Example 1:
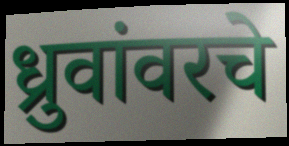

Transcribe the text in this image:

ध्रुवांवरचे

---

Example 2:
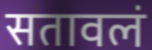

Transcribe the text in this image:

सतावलं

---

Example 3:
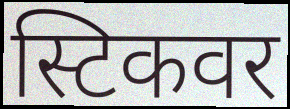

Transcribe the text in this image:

स्टिकवर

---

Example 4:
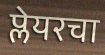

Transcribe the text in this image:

प्लेयरचा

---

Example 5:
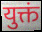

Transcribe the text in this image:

युक्तं